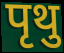
पृथु